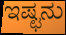
ಇಷ್ಟನು